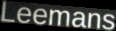
Leemans